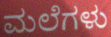
ಮಲೆಗಳು